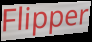
Flipper